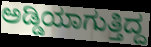
ಅಡ್ಡಿಯಾಗುತ್ತಿದ್ದ